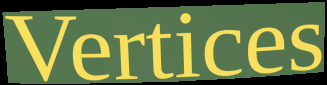
Vertices